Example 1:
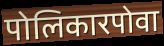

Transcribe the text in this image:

पोलिकारपोवा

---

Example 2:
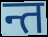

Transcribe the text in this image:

न्त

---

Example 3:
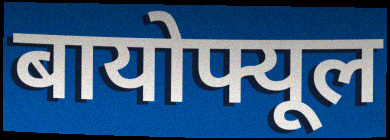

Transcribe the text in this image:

बायोफ्यूल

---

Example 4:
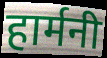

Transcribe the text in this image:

हार्मनी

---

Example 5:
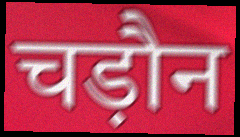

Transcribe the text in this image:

चड़ौन